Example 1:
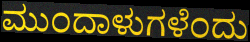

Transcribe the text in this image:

ಮುಂದಾಳುಗಳೆಂದು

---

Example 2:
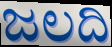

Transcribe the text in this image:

ಜಲದಿ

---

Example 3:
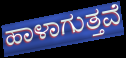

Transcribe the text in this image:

ಹಾಳಾಗುತ್ತವೆ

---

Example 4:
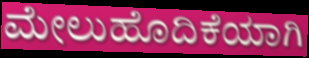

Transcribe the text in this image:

ಮೇಲುಹೊದಿಕೆಯಾಗಿ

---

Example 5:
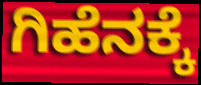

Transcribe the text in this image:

ಗಿಹೆನಕ್ಕೆ